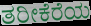
ತರೀಕೆರೆಯ